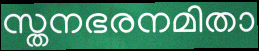
സ്തനഭരനമിതാ